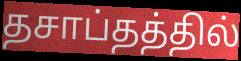
தசாப்தத்தில்